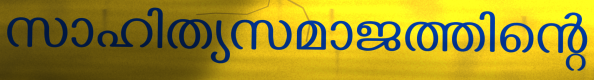
സാഹിത്യസമാജത്തിന്റെ